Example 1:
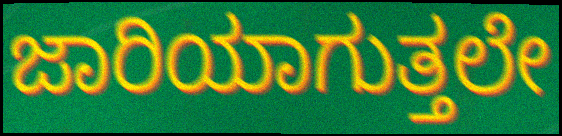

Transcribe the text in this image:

ಜಾರಿಯಾಗುತ್ತಲೇ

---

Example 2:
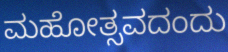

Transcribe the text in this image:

ಮಹೋತ್ಸವದಂದು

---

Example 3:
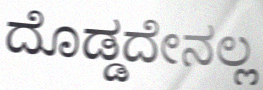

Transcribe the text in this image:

ದೊಡ್ಡದೇನಲ್ಲ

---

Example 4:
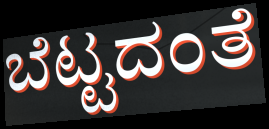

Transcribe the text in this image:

ಬೆಟ್ಟದಂತೆ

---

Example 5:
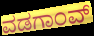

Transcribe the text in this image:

ವಡಗಾಂವ್